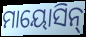
ମାୟୋସିନ୍